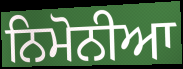
ਨਿਮੋਨੀਆ